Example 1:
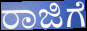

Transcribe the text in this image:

ರಾಜಿಗೆ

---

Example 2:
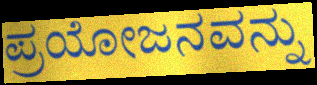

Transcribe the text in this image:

ಪ್ರಯೋಜನವನ್ನು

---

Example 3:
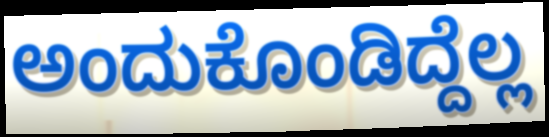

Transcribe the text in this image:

ಅಂದುಕೊಂಡಿದ್ದೆಲ್ಲ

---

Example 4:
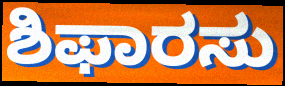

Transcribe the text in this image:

ಶಿಫಾರಸು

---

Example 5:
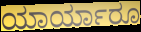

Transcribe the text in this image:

ಯಾರ್ಯಾರೂ